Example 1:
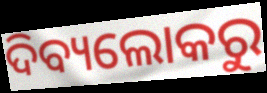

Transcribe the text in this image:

ଦିବ୍ୟଲୋକରୁ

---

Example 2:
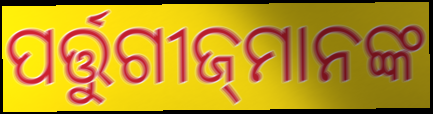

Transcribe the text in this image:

ପର୍ତ୍ତୁଗୀଜ୍‌ମାନଙ୍କ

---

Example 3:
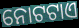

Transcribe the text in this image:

ନୋଟଟାଏ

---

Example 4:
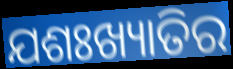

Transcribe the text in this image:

ଯଶଃଖ୍ୟାତିର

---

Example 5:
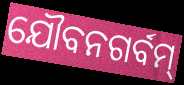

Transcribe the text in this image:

ଯୌବନଗର୍ବମ୍